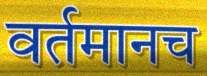
वर्तमानच